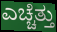
ಎಚ್ಚೆತ್ತು